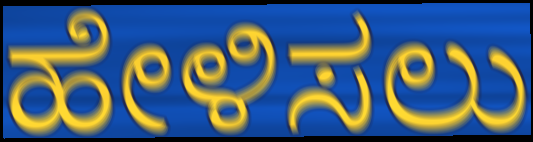
ಹೇಳಿಸಲು